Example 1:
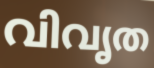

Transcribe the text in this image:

വിവൃത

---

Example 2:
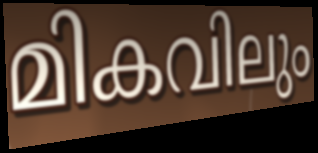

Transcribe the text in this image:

മികവിലും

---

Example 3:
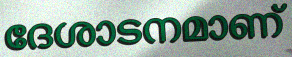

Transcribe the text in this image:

ദേശാടനമാണ്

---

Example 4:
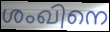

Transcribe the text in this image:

ശംഖിനെ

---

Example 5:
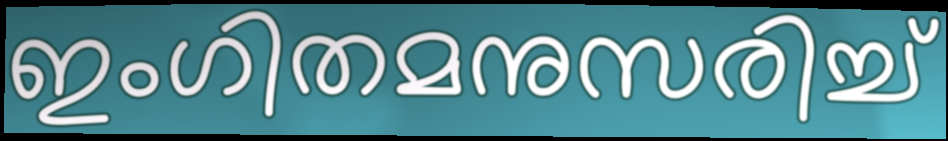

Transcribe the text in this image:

ഇംഗിതമനുസരിച്ച്